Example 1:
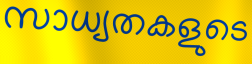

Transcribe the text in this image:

സാധ്യതകളുടെ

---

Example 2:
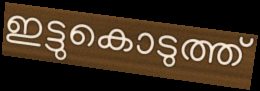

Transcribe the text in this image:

ഇട്ടുകൊടുത്ത്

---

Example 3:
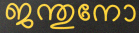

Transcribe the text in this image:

ജന്തുനോ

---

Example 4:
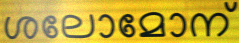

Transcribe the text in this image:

ശലോമോന്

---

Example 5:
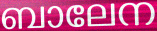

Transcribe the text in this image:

ബാലേന